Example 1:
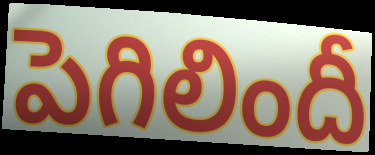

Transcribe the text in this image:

పెగిలిందీ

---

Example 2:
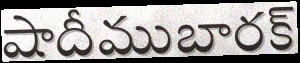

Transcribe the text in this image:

షాదీముబారక్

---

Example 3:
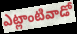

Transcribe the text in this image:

ఎట్లాంటివాడో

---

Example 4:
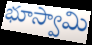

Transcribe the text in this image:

భూస్వామి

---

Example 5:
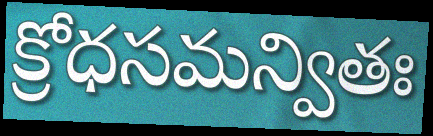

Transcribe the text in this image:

క్రోధసమన్వితః